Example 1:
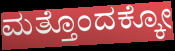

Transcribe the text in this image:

ಮತ್ತೊಂದಕ್ಕೋ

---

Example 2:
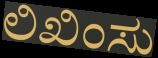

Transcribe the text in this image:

ಲಿಖಿಂಸು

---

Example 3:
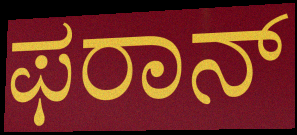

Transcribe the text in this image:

ಫರಾನ್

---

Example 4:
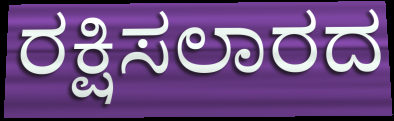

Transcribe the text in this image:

ರಕ್ಷಿಸಲಾರದ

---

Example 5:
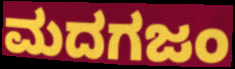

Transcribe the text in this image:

ಮದಗಜಂ